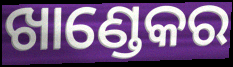
ଖାଣ୍ଡେକର